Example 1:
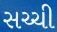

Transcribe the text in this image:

સચ્ચી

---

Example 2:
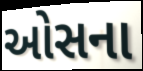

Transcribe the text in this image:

ઓસના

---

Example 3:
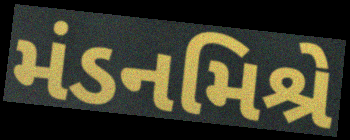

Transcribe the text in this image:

મંડનમિશ્રે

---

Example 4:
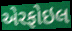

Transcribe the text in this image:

એરફોઇલ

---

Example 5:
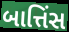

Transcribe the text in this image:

બાત્તિંસ